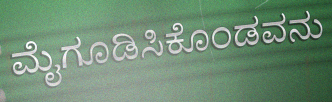
ಮೈಗೂಡಿಸಿಕೊಂಡವನು